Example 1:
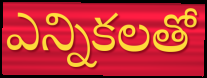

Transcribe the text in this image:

ఎన్నికలతో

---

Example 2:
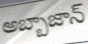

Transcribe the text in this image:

అబ్బాజాన్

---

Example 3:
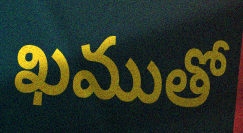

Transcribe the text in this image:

ఖముతో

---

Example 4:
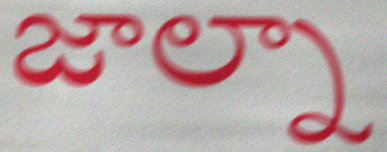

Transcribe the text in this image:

జాల్నా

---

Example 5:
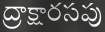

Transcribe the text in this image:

ద్రాక్షారసపు